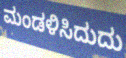
ಮಂಡಳಿಸಿದುದು